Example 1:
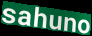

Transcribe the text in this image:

sahuno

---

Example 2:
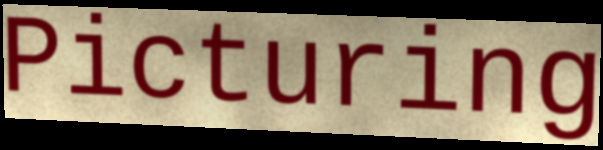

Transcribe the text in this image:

Picturing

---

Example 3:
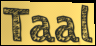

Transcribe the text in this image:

Taal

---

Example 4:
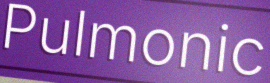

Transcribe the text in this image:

Pulmonic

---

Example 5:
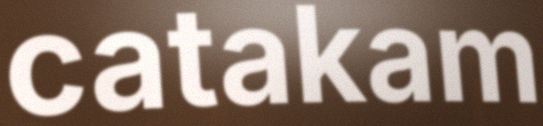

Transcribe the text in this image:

catakam